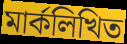
মার্কলিখিত